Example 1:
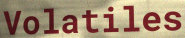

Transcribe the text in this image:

Volatiles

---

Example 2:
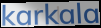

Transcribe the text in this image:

karkala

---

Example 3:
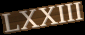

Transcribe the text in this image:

LXXIII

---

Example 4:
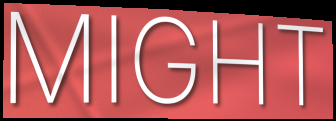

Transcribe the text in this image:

MIGHT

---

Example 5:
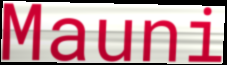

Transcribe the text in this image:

Mauni